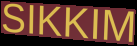
SIKKIM